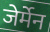
जेर्मेन